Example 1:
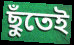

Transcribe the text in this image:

ছুঁতেই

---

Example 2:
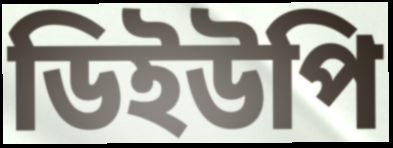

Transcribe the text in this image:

ডিইউপি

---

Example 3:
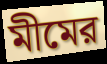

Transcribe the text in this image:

মীমের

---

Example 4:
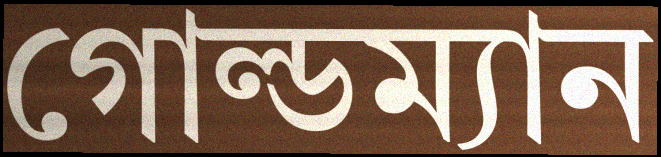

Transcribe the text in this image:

গোল্ডম্যান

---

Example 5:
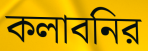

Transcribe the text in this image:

কলাবনির